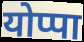
योप्पा